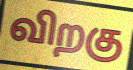
விறகு